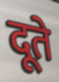
दूते